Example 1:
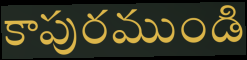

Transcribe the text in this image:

కాపురముండి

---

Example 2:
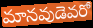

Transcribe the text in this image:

మానవుడెవరో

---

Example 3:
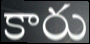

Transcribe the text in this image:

కారు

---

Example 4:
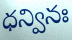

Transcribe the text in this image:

ధన్వినః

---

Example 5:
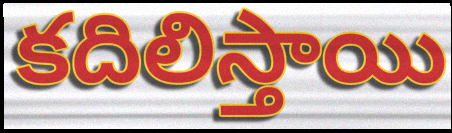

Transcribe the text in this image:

కదిలిస్తాయి